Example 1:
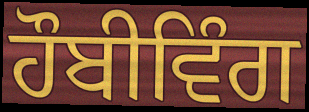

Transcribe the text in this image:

ਹੌਬੀਵਿੰਗ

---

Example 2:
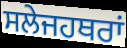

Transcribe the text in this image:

ਸਲੇਜਹਥਰਾਂ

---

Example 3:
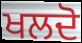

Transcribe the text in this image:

ਖਲਦੋ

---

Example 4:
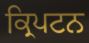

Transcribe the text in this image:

ਕ੍ਰਿਪਟਨ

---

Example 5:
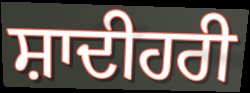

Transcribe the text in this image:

ਸ਼ਾਦੀਹਰੀ